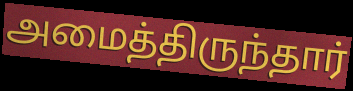
அமைத்திருந்தார்